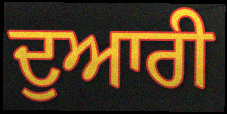
ਦੁਆਰੀ